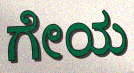
ಗೇಯ